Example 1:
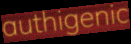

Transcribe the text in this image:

authigenic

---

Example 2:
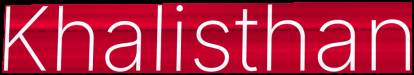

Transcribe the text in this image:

Khalisthan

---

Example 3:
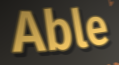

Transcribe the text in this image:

Able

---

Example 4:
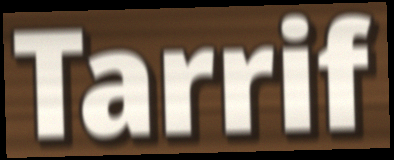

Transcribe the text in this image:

Tarrif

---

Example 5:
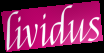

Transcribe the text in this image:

lividus